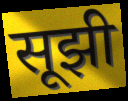
सूझी